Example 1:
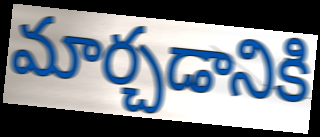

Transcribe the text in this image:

మార్చడానికి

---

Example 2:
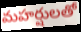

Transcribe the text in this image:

మహర్షులతో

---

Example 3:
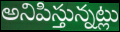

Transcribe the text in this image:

అనిపిస్తున్నట్లు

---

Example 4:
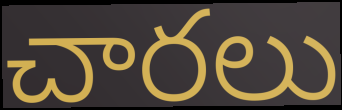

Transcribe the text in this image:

చారలు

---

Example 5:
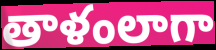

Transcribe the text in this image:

తాళంలాగా